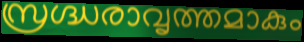
സ്രഗ്ദ്ധരാവൃത്തമാകും